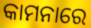
କାମନାରେ